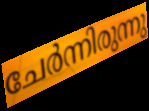
ചേർന്നിരുന്നു